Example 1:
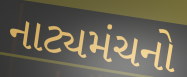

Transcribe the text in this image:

નાટ્યમંચનો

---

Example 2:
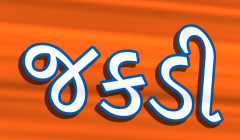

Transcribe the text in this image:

જકડી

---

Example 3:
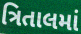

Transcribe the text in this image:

ત્રિતાલમાં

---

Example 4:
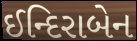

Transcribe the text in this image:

ઈન્દિરાબેન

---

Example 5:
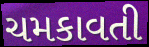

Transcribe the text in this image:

ચમકાવતી